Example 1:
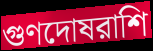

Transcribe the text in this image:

গুণদোষরাশি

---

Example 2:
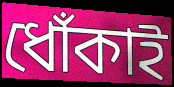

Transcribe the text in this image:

ধোঁকাই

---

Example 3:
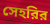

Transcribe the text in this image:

সেহরির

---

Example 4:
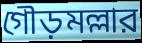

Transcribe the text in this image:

গৌড়মল্লার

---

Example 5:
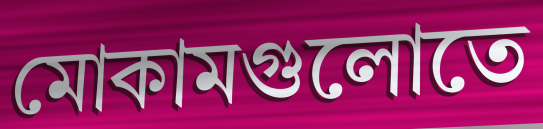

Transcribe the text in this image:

মোকামগুলোতে